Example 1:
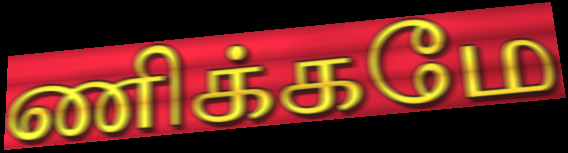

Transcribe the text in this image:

ணிக்கமே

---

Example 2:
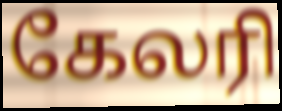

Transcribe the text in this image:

கேலரி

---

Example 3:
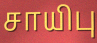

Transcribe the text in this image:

சாயிபு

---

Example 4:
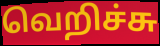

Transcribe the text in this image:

வெறிச்சு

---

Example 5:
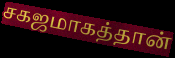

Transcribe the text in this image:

சகஜமாகத்தான்